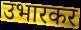
उभारकर